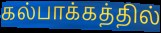
கல்பாக்கத்தில்